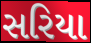
સરિયા